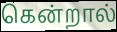
கென்றால்